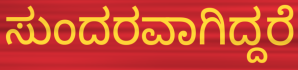
ಸುಂದರವಾಗಿದ್ದರೆ